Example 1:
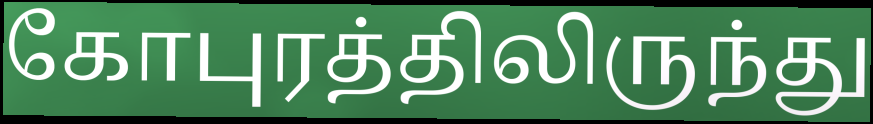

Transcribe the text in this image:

கோபுரத்திலிருந்து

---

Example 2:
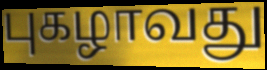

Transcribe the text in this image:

புகழாவது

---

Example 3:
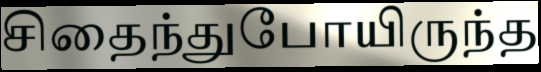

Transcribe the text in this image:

சிதைந்துபோயிருந்த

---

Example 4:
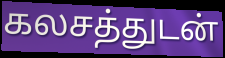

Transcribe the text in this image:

கலசத்துடன்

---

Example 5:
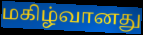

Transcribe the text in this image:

மகிழ்வானது